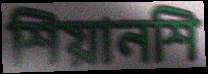
শিয়ানশি